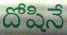
దోషినే